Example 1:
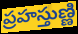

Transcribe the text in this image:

ప్రహస్తుణ్ణి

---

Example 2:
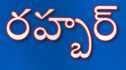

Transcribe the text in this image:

రహ్బర్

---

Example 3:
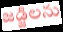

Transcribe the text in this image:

జడ్జిలను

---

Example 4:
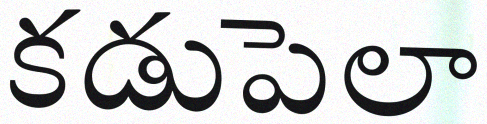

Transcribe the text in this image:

కడుపెలా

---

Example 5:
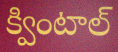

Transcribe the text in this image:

క్వింటాల్